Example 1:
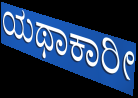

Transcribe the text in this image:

ಯಥಾಕಾರೀ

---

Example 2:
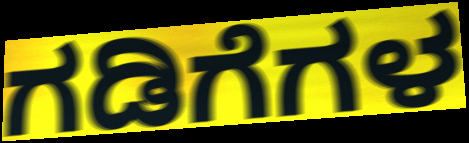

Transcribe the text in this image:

ಗಡಿಗೆಗಳ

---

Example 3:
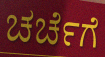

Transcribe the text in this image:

ಚರ್ಚೆಗೆ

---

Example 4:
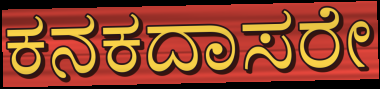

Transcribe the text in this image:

ಕನಕದಾಸರೇ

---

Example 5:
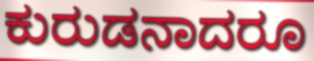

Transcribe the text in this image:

ಕುರುಡನಾದರೂ